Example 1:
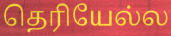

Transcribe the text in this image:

தெரியேல்ல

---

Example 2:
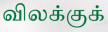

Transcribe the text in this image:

விலக்குக்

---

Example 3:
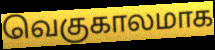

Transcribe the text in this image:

வெகுகாலமாக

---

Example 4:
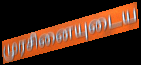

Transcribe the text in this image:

முரசினையுடைய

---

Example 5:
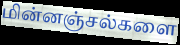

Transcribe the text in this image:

மின்னஞ்சல்களை